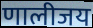
णालीजय